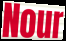
Nour